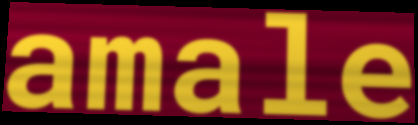
amale